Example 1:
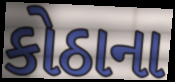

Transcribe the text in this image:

કોઠાના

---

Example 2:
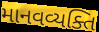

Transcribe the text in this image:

માનવવ્યક્તિ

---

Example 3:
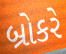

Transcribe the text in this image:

બ્રોકરે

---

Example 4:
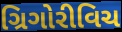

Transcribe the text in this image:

ગ્રિગોરીવિચ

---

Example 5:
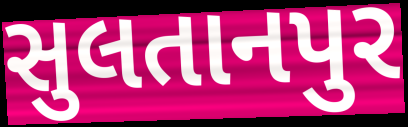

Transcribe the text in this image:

સુલતાનપુર